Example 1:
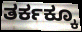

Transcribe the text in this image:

ತರ್ಕಕ್ಕೂ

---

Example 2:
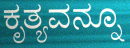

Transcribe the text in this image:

ಕೃತ್ಯವನ್ನೂ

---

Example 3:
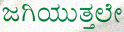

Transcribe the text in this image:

ಜಗಿಯುತ್ತಲೇ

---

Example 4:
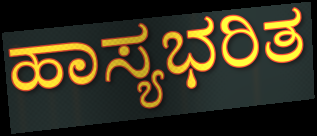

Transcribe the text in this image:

ಹಾಸ್ಯಭರಿತ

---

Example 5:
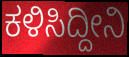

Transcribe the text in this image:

ಕಳಿಸಿದ್ದೀನಿ